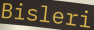
Bisleri